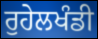
ਰੁਹੇਲਖੰਡੀ